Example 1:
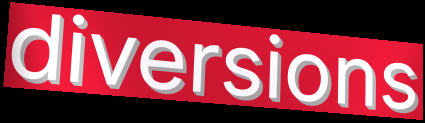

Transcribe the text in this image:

diversions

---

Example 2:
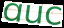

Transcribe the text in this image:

auc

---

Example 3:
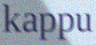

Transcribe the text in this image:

kappu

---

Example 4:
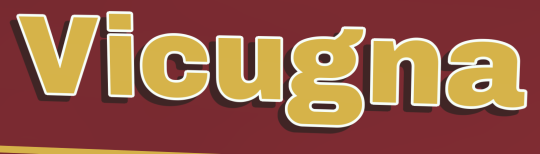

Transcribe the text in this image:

Vicugna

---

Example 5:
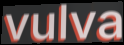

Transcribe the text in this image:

vulva